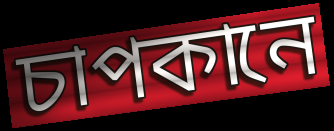
চাপকানে